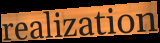
realization